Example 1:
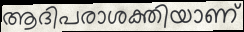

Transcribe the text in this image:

ആദിപരാശക്തിയാണ്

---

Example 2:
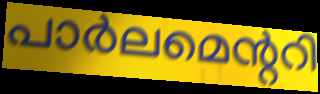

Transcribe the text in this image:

പാർലമെന്ററി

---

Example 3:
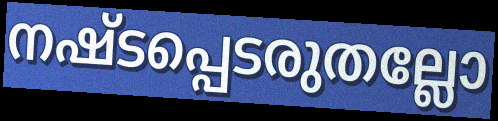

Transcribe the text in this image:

നഷ്ടപ്പെടരുതല്ലോ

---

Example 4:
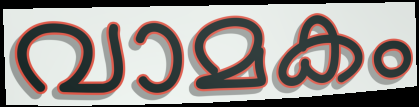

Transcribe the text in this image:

വാമകം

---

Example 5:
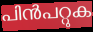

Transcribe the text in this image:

പിൻപറ്റുക